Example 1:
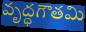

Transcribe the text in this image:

వృద్ధగౌతమి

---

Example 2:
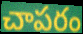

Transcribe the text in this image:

చాపరం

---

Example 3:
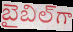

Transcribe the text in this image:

బైబిల్‌గా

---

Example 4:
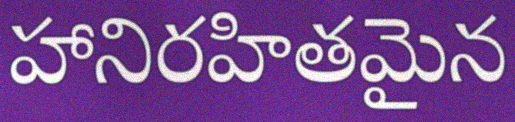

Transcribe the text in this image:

హానిరహితమైన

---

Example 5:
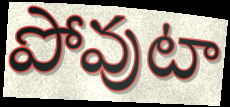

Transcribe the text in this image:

పోవుటా